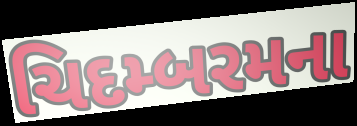
ચિદમ્બરમના